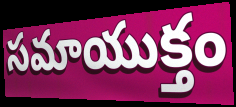
సమాయుక్తం